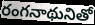
రంగనాథునితో